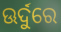
ଊର୍ଦୁରେ